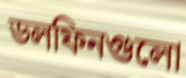
ডলফিনগুলো